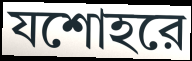
যশোহরে